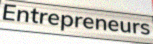
Entrepreneurs